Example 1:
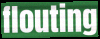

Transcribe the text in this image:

flouting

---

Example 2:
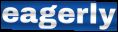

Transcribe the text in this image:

eagerly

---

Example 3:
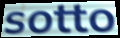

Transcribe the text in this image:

sotto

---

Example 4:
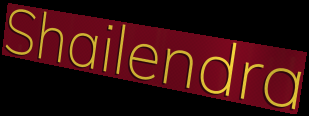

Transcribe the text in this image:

Shailendra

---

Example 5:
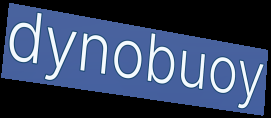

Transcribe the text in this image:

dynobuoy